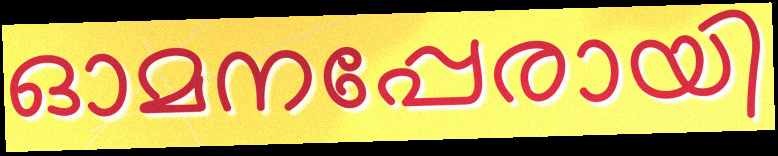
ഓമനപ്പേരായി